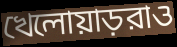
খেলোয়াড়রাও